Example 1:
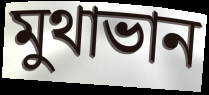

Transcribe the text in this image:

মুথাভান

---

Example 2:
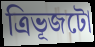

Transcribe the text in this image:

ত্ৰিভূজটো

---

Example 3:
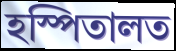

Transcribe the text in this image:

হস্পিতালত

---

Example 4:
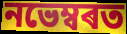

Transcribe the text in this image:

নভেম্বৰত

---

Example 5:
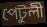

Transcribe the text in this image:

পেটুলী